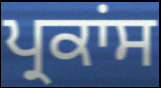
ਪ੍ਰਕਾਂਸ